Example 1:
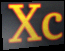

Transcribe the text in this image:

Xc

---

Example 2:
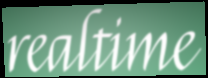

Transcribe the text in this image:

realtime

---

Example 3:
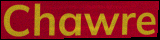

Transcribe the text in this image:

Chawre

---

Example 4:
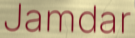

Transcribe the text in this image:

Jamdar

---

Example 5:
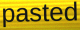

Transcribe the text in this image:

pasted